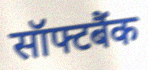
सॉफ्टबैंक